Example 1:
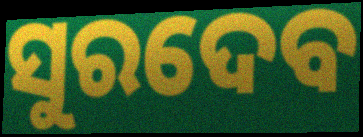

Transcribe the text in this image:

ସୁରଦେବ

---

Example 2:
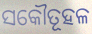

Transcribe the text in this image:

ସକୌତୂହଳ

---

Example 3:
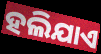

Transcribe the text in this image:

ହଲିଯାଏ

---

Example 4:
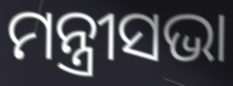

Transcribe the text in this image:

ମନ୍ତ୍ରୀସଭା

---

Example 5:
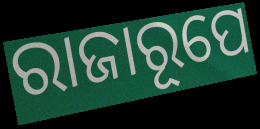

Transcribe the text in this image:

ରାଜାରୂପେ